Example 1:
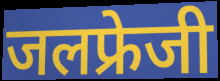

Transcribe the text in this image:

जलफ्रेजी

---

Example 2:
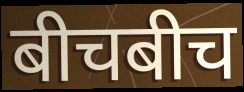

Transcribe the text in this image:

बीचबीच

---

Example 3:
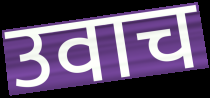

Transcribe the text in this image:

उवाच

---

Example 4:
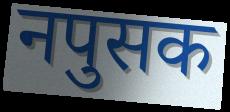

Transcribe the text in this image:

नपुसक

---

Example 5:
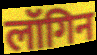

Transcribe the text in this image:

लॉगिन